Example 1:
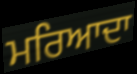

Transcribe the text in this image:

ਮਰਿਆਦਾ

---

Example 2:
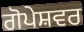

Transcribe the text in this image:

ਗੋਪੇਸ਼ਵਰ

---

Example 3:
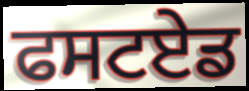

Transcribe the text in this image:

ਫਸਟਏਡ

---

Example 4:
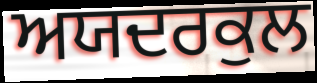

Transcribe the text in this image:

ਅਯਦਰਕੁਲ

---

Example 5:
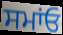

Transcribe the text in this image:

ਸਮਾਂਓ